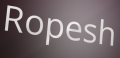
Ropesh